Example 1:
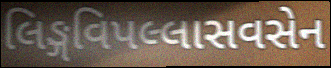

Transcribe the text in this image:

લિઙ્ગવિપલ્લાસવસેન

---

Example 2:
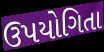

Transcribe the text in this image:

ઉપયોગિતા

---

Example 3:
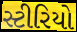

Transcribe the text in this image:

સ્ટીરિયો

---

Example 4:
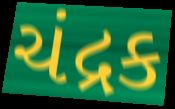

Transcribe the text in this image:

ચંદ્રક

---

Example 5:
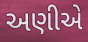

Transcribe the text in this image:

અણીએ